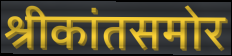
श्रीकांतसमोर